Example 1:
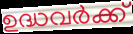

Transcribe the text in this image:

ഉദ്ധവർക്ക്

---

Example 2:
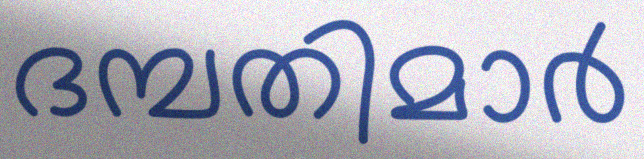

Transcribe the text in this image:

ദമ്പതിമാർ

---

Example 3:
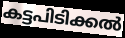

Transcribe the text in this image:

കട്ടപിടിക്കൽ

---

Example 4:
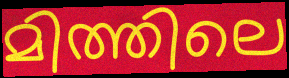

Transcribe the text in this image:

മിത്തിലെ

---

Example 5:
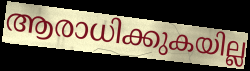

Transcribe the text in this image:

ആരാധിക്കുകയില്ല